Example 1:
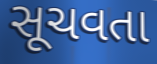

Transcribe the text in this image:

સૂચવતા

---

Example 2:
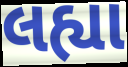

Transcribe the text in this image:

લહ્યા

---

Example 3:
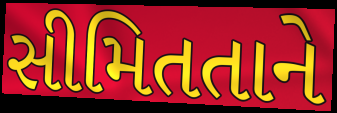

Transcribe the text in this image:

સીમિતતાને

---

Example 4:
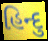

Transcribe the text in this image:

હિન્દુ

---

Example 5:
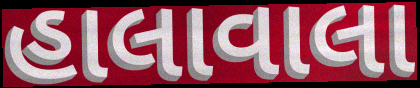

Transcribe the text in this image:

હાલાવાલા